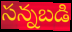
సన్నబడి